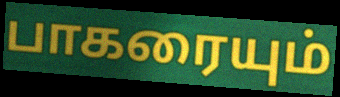
பாகரையும்